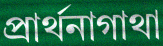
প্রার্থনাগাথা